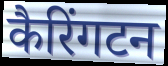
कैरिंगटन